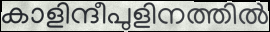
കാളിന്ദീപുളിനത്തിൽ